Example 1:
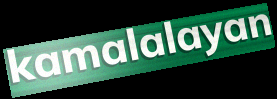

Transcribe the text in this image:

kamalalayan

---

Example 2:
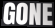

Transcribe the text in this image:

GONE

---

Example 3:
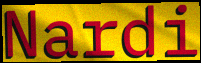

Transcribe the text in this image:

Nardi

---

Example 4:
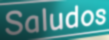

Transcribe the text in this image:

Saludos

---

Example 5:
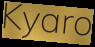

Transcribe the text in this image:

Kyaro